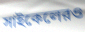
সাইকেলেরও